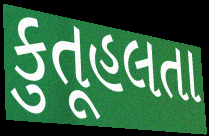
કુતૂહલતા